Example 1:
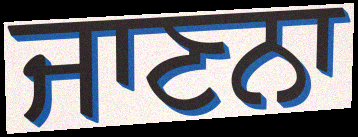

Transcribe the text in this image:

ਜਾਣਨਾ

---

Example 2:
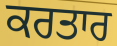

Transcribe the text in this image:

ਕਰਤਾਰ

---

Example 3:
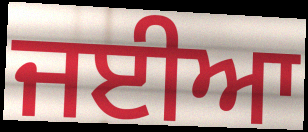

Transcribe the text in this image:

ਜਈਆ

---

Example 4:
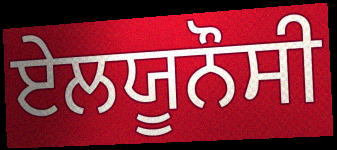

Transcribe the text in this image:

ਏਲਯੂਨੌਸੀ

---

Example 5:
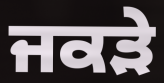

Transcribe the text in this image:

ਜਕੜੇ